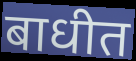
बाधीत